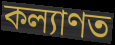
কল্যাণত